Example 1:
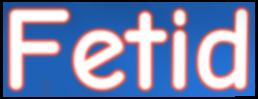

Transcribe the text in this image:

Fetid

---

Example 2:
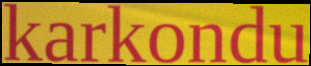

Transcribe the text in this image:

karkondu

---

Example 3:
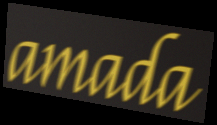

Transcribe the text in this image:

amada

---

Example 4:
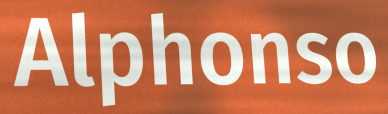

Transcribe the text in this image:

Alphonso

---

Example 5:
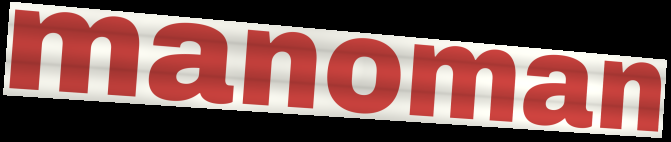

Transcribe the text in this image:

manoman